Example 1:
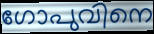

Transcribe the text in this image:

ഗോപുവിനെ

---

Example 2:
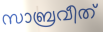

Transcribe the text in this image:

സാബ്രവീത്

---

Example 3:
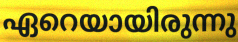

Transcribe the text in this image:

ഏറെയായിരുന്നു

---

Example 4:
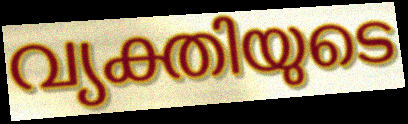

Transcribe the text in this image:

വ്യക്തിയുടെ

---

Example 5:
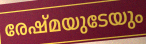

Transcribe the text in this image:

രേഷ്മയുടേയും